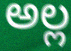
అల్ల